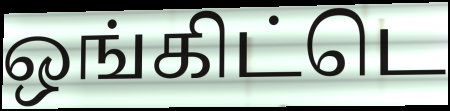
ஒங்கிட்டெ